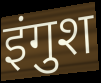
इंगुश